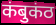
कंबुकंठ